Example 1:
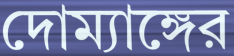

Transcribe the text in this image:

দোম্যাঙ্গের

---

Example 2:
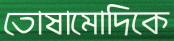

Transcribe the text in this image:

তোষামোদিকে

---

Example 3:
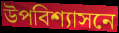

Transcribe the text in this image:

উপবিশ্যাসনে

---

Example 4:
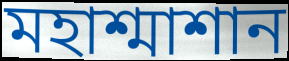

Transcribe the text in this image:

মহাশ্মাশান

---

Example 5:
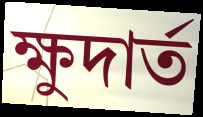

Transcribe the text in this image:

ক্ষুদার্ত